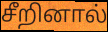
சீறினால்